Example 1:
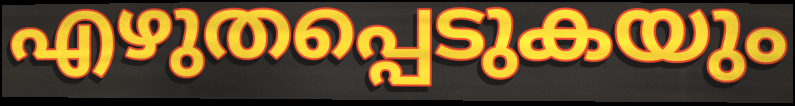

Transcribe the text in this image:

എഴുതപ്പെടുകയും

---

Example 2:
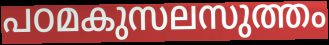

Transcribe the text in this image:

പഠമകുസലസുത്തം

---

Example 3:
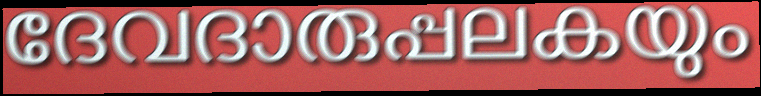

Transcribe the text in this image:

ദേവദാരുപ്പലകയും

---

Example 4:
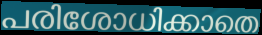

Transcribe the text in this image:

പരിശോധിക്കാതെ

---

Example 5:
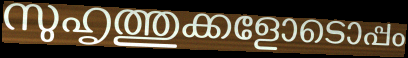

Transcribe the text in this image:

സുഹൃത്തുക്കളോടൊപ്പം